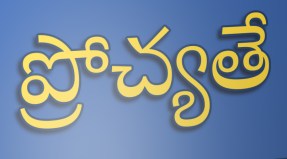
ప్రోచ్యతే